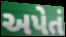
અપેતં